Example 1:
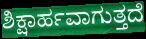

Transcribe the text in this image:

ಶಿಕ್ಷಾರ್ಹವಾಗುತ್ತದೆ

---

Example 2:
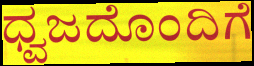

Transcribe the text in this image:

ಧ್ವಜದೊಂದಿಗೆ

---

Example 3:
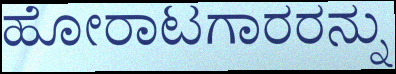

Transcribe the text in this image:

ಹೋರಾಟಗಾರರನ್ನು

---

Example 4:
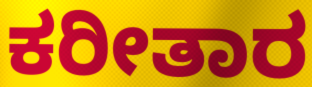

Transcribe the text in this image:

ಕರೀತಾರ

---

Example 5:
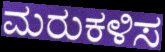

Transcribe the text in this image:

ಮರುಕಳಿಸ